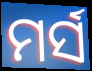
ମର୍ସ